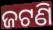
ଜଟଣି